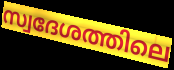
സ്വദേശത്തിലെ